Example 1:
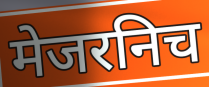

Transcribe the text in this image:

मेजरनिच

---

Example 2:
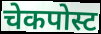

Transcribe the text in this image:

चेकपोस्ट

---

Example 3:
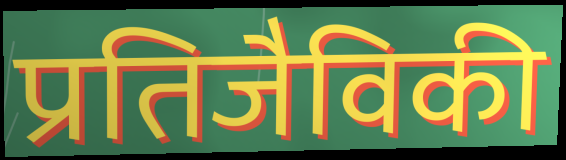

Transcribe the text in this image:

प्रतिजैविकी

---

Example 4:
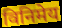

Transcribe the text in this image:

विनिमेय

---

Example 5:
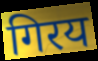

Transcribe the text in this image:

गिरय